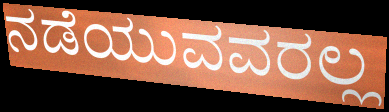
ನಡೆಯುವವರಲ್ಲ